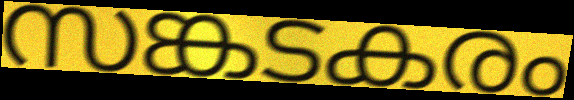
സങ്കടകരം